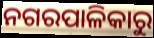
ନଗରପାଳିକାରୁ